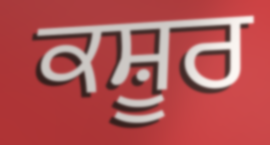
ਕਸ਼ੂਰ